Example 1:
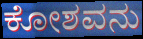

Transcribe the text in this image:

ಕೋಶವನು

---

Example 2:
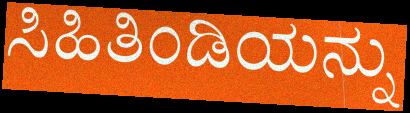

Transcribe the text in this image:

ಸಿಹಿತಿಂಡಿಯನ್ನು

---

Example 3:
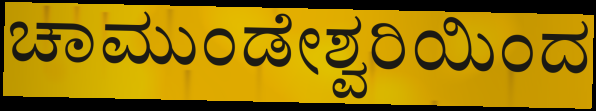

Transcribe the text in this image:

ಚಾಮುಂಡೇಶ್ವರಿಯಿಂದ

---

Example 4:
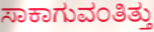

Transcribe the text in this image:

ಸಾಕಾಗುವಂತಿತ್ತು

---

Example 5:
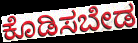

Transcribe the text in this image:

ಕೊಡಿಸಬೇಡ